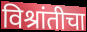
विश्रांतीचा